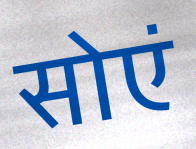
सोएं